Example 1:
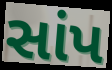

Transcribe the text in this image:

સાંપ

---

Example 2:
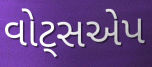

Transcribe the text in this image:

વોટ્સએપ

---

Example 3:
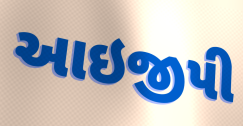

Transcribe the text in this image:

આઇજીપી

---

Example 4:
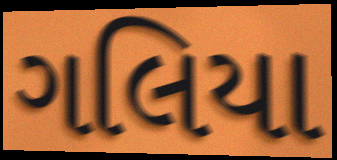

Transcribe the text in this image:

ગલિયા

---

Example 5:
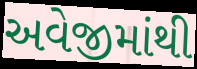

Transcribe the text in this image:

અવેજીમાંથી